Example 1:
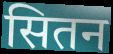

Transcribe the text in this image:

सितन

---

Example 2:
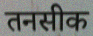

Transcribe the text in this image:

तनसीक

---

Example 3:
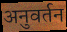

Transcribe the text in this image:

अनुवर्तन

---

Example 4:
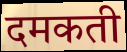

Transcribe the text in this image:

दमकती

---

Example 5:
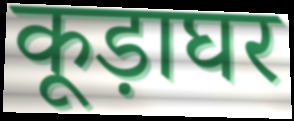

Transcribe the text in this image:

कूड़ाघर